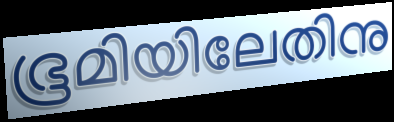
ഭൂമിയിലേതിനു